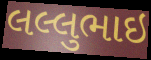
લલ્લુભાઇ